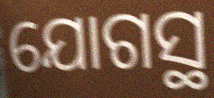
ଯୋଗସ୍ଥ